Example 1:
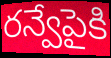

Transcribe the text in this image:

రన్వేపైకి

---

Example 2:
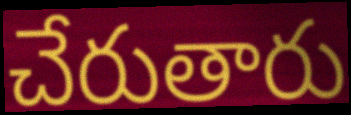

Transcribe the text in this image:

చేరుతారు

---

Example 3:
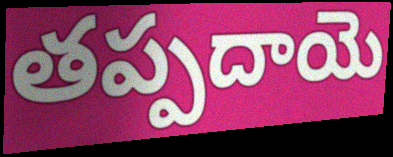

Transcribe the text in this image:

తప్పదాయె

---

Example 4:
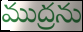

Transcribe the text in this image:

ముద్రను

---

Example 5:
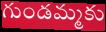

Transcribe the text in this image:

గుండమ్మకు